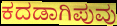
ಕದಡಾಗಿಪುವು